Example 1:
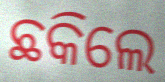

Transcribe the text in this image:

ଛକିଲେ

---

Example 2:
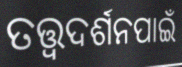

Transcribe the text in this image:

ତତ୍ତ୍ଵଦର୍ଶନପାଇଁ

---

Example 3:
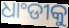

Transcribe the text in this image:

ଧାଂଡୀକୁ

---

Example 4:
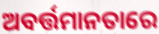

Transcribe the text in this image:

ଅବର୍ତ୍ତମାନତାରେ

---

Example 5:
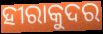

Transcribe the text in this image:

ହୀରାକୁଦର